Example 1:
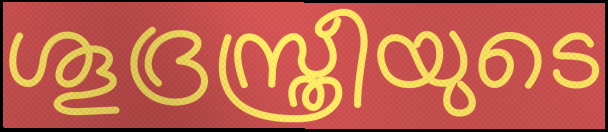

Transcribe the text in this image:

ശൂദ്രസ്ത്രീയുടെ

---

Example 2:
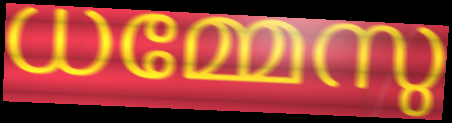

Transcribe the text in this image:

ധമ്മേസു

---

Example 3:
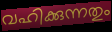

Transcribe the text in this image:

വഹിക്കുന്നതും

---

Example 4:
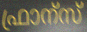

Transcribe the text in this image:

ഫ്രാന്സ്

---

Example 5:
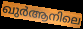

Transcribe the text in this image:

ഖുർആനിലെ